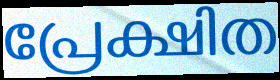
പ്രേക്ഷിത